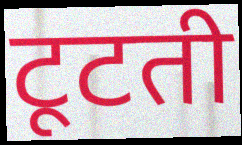
टूटती